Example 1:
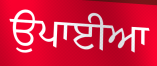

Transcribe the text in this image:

ਉਪਾਈਆ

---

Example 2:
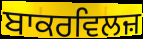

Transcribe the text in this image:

ਬਾਕਰਵਿਲਜ਼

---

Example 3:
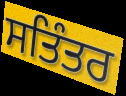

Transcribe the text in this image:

ਸਤਿੰਤਰ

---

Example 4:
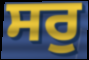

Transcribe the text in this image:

ਸਰੁ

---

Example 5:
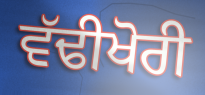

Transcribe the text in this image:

ਵੱਢੀਖੋਰੀ